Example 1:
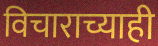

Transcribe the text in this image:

विचाराच्याही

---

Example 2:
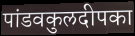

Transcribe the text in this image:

पांडवकुलदीपका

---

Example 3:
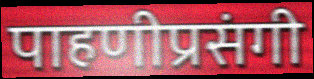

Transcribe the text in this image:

पाहणीप्रसंगी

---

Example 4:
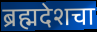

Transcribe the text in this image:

ब्रह्मदेशचा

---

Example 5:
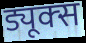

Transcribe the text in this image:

ड्यूक्‍स